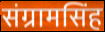
संग्रामसिंह